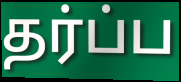
தர்ப்ப